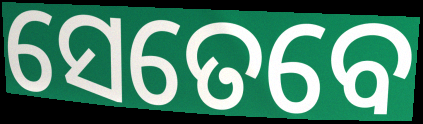
ସେତେବେ